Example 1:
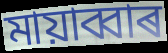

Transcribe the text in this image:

মায়াব্বাৰ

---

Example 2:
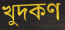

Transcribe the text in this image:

খুদকণ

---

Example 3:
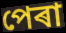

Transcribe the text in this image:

পেৰা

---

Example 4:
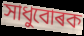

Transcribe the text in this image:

সাধুবোৰক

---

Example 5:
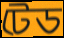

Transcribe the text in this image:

টেড